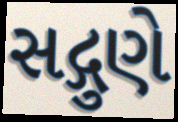
સદ્ગુણે